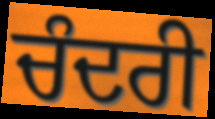
ਚੰਦਰੀ